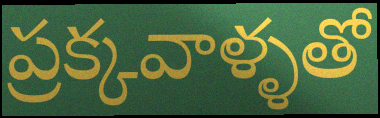
ప్రక్కవాళ్ళతో